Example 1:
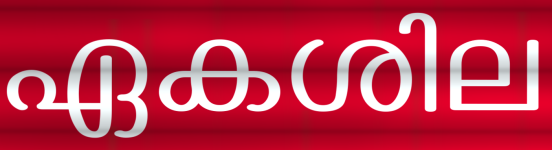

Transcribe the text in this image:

ഏകശില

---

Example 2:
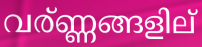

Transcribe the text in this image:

വര്ണ്ണങ്ങളില്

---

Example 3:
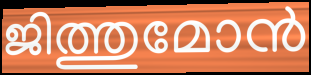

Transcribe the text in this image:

ജിത്തുമോൻ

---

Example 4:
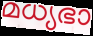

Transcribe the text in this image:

മധ്യഭാ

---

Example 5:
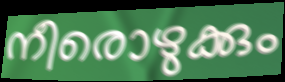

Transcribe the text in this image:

നീരൊഴുക്കും